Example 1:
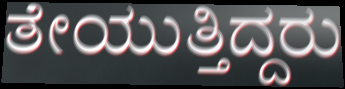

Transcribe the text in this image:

ತೇಯುತ್ತಿದ್ದರು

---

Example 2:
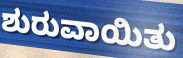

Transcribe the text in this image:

ಶುರುವಾಯಿತು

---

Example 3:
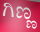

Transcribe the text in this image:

ಗಿಣ್ಣ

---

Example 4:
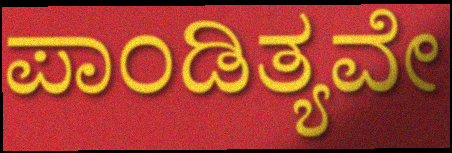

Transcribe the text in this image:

ಪಾಂಡಿತ್ಯವೇ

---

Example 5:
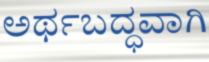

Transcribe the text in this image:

ಅರ್ಥಬದ್ಧವಾಗಿ